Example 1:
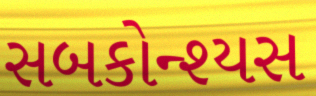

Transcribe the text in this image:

સબકોન્શ્યસ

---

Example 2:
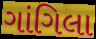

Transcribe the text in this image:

ગાંગિલા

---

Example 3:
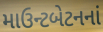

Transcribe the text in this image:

માઉન્ટબેટનનાં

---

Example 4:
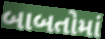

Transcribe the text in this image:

બાબતોમાં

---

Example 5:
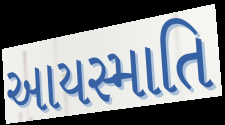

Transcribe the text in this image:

આયસ્માતિ